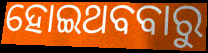
ହୋଇଥବବାରୁ